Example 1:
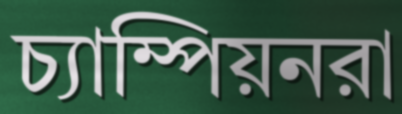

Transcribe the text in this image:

চ্যাম্পিয়নরা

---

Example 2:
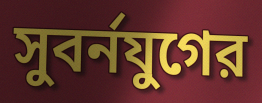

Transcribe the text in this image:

সুবর্নযুগের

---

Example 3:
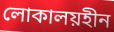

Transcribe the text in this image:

লোকালয়হীন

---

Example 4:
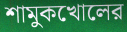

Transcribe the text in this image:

শামুকখোলের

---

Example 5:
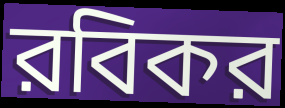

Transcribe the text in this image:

রবিকর